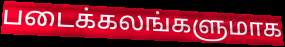
படைக்கலங்களுமாக